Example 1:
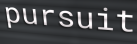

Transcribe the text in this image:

pursuit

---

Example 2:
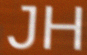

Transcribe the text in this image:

JH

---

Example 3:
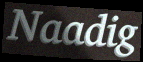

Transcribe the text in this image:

Naadig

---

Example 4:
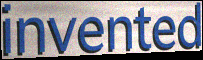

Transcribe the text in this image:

invented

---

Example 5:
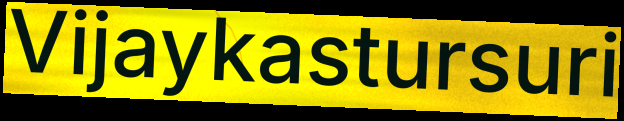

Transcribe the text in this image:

Vijaykastursuri